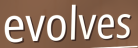
evolves